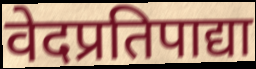
वेदप्रतिपाद्या